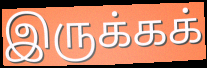
இருக்கக்